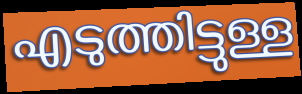
എടുത്തിട്ടുള്ള